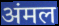
अंमल